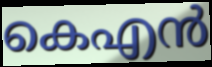
കെഎൻ